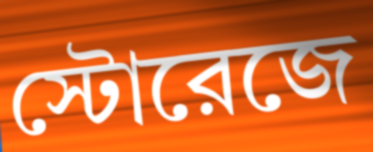
স্টোরেজে